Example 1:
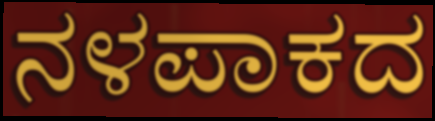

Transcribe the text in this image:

ನಳಪಾಕದ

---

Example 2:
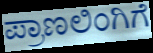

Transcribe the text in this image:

ಪ್ರಾಣಲಿಂಗಿಗೆ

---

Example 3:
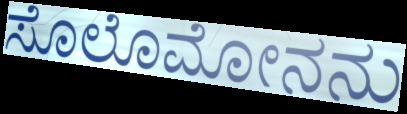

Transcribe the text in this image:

ಸೊಲೊಮೋನನು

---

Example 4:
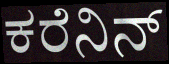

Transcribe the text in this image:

ಕರೆನಿನ್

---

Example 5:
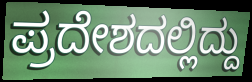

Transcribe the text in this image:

ಪ್ರದೇಶದಲ್ಲಿದ್ದು